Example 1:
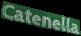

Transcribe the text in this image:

Catenella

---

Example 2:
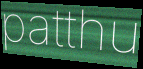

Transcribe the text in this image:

patthu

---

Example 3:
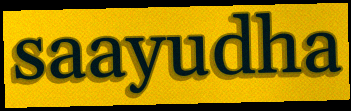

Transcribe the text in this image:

saayudha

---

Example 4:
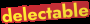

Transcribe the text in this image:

delectable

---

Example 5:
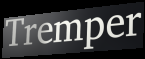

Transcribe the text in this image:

Tremper